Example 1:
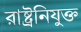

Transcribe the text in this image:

রাষ্ট্রনিযুক্ত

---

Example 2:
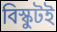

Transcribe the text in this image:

বিস্কুটই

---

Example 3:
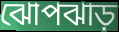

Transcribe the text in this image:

ঝোপঝাড়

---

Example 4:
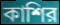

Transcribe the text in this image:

কাশির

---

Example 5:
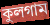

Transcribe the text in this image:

কুলগাম